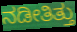
ನಡೀತಿತ್ತು